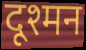
दूश्मन